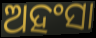
ଅହଂସା